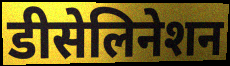
डीसेलिनेशन